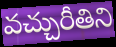
వచ్చురీతిని